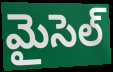
మైసెల్